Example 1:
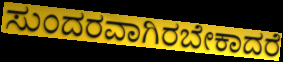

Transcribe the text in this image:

ಸುಂದರವಾಗಿರಬೇಕಾದರೆ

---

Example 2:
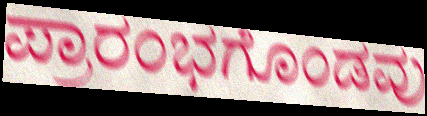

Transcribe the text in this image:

ಪ್ರಾರಂಭಗೊಂಡವು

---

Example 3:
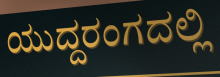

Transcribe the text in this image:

ಯುದ್ದರಂಗದಲ್ಲಿ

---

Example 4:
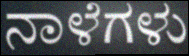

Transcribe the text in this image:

ನಾಳೆಗಳು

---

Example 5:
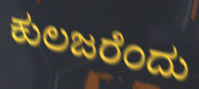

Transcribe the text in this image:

ಕುಲಜರೆಂದು